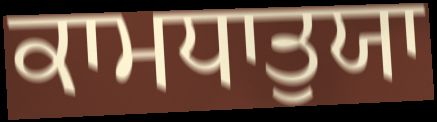
ਕਾਮਧਾਤੁਯਾ